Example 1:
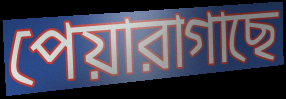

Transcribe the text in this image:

পেয়ারাগাছে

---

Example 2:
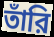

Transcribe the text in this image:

তাঁরি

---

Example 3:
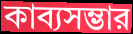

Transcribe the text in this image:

কাব্যসম্ভার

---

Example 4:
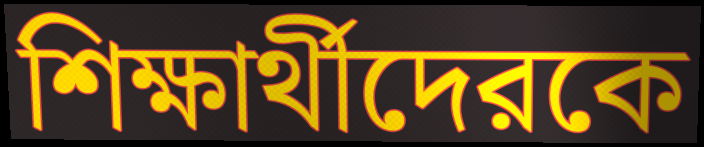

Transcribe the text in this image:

শিক্ষার্থীদেরকে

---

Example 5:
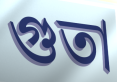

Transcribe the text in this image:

গুতা